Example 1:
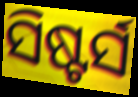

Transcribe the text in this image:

ସିଷ୍ଟର୍ସ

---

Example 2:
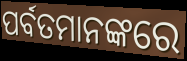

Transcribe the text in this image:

ପର୍ବତମାନଙ୍କରେ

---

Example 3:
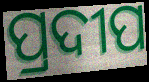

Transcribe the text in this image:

ପ୍ରଦୀପ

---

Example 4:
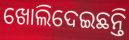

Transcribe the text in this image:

ଖୋଲିଦେଇଛନ୍ତି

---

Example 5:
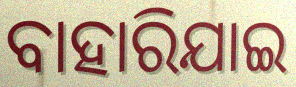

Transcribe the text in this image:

ବାହାରିଯାଇ